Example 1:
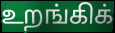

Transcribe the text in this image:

உறங்கிக்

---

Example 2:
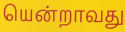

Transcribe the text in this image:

யென்றாவது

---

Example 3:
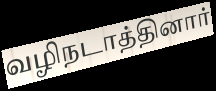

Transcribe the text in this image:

வழிநடாத்தினார்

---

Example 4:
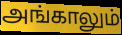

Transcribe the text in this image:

அங்காலும்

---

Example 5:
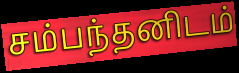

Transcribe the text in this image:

சம்பந்தனிடம்